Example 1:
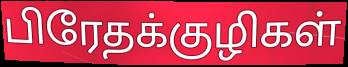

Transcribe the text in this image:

பிரேதக்குழிகள்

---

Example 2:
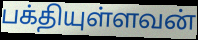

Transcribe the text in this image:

பக்தியுள்ளவன்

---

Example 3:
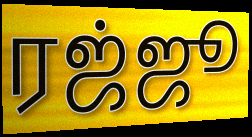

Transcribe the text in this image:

ரஜ்ஜூ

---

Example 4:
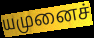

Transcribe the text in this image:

யமுனைச்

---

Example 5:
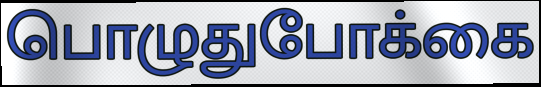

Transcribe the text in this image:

பொழுதுபோக்கை